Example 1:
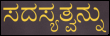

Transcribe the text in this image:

ಸದಸ್ಯತ್ವನ್ನು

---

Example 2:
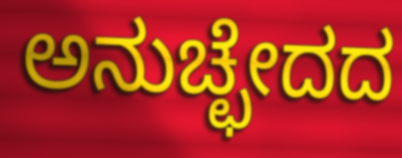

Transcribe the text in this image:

ಅನುಚ್ಛೇದದ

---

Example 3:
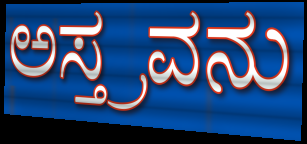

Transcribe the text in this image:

ಅಸ್ತ್ರವನು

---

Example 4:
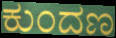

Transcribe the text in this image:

ಕುಂದಣ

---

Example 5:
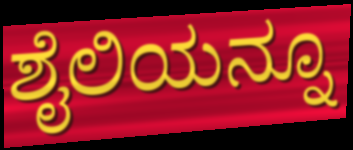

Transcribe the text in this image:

ಶೈಲಿಯನ್ನೂ